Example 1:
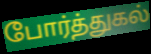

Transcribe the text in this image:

போர்த்துகல்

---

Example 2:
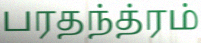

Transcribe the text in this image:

பரதந்த்ரம்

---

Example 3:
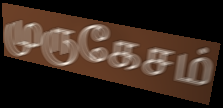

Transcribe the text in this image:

முருகேசம்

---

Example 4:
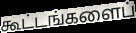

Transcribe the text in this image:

கூட்டங்களைப்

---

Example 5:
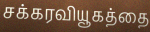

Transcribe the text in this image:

சக்கரவியூகத்தை